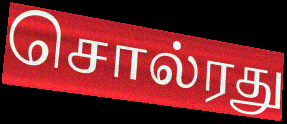
சொல்ரது